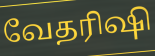
வேதரிஷி